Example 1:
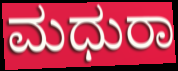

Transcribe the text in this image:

ಮಧುರಾ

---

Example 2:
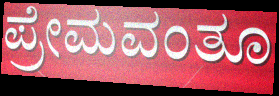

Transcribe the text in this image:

ಪ್ರೇಮವಂತೂ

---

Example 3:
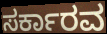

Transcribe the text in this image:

ಸರ್ಕಾರವ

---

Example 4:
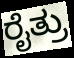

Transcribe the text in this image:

ರೈತ್ರು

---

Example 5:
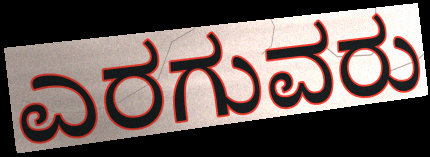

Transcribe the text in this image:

ಎರಗುವರು